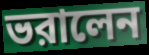
ভরালেন